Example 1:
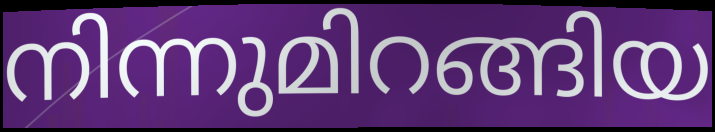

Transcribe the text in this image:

നിന്നുമിറങ്ങിയ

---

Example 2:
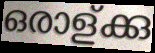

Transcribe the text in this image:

ഒരാള്ക്കു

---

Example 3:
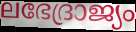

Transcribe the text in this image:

ലഭേദ്രാജ്യം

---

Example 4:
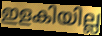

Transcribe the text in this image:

ഇളകിയില്ല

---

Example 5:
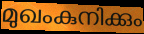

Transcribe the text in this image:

മുഖംകുനിക്കും